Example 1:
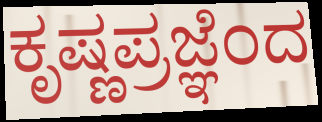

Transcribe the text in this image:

ಕೃಷ್ಣಪ್ರಜ್ಞೆಂದ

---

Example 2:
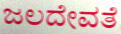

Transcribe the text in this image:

ಜಲದೇವತೆ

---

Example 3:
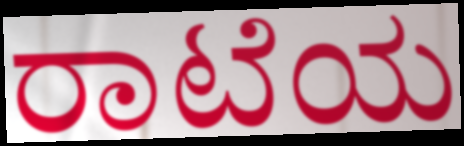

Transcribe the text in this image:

ರಾಟೆಯ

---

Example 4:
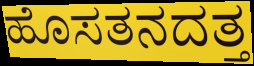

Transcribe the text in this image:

ಹೊಸತನದತ್ತ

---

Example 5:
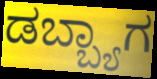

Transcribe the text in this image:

ಡಬ್ಬ್ಯಾಗ